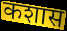
कशास